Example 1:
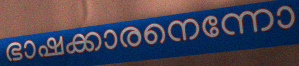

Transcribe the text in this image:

ഭാഷക്കാരനെന്നോ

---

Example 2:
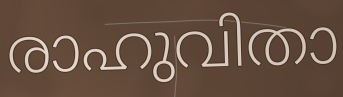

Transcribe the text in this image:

രാഹുവിതാ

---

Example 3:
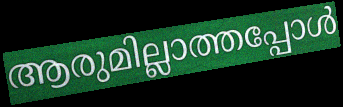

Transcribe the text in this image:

ആരുമില്ലാത്തപ്പോൾ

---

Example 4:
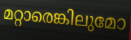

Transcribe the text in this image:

മറ്റാരെങ്കിലുമോ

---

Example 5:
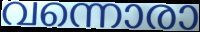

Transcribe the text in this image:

വന്നൊരാ